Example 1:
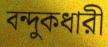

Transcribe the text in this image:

বন্দুকধারী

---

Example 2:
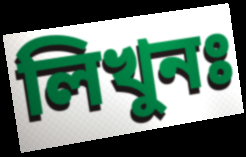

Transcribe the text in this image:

লিখুনঃ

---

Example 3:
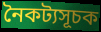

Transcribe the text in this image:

নৈকট্যসূচক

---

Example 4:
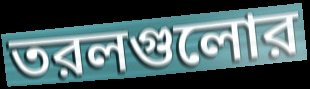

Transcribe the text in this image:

তরলগুলোর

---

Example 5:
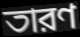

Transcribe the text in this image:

তারণ